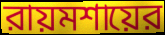
রায়মশায়ের